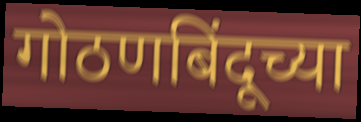
गोठणबिंदूच्या